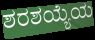
ಶರಶಯ್ಯೆಯ